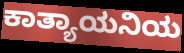
ಕಾತ್ಯಾಯನಿಯ